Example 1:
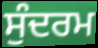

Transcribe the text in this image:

ਸੁੰਦਰਮ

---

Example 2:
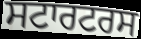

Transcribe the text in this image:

ਸਟਾਰਟਰਸ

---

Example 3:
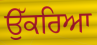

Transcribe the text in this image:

ਉੱਕਰਿਆ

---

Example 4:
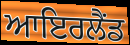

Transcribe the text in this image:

ਆਇਰਲੈੰਡ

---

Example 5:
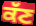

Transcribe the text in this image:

ਕੱਣ